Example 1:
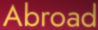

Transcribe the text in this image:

Abroad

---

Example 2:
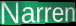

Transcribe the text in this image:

Narren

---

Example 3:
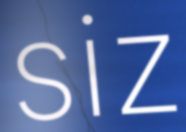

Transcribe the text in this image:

siz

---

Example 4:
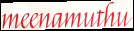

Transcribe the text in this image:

meenamuthu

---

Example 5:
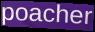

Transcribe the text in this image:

poacher